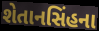
શેતાનસિંહના